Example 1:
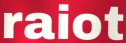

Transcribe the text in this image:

raiot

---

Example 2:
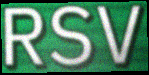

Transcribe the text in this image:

RSV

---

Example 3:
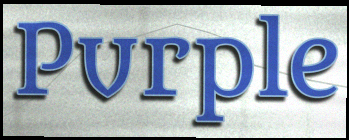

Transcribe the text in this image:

Purple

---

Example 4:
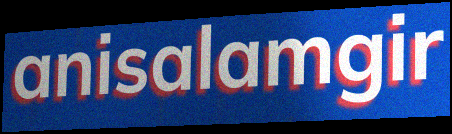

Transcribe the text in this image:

anisalamgir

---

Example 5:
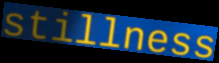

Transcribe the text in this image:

stillness